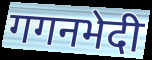
गगनभेदी